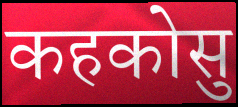
कहकोसु